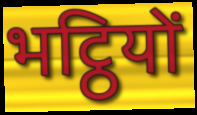
भट्ठियों